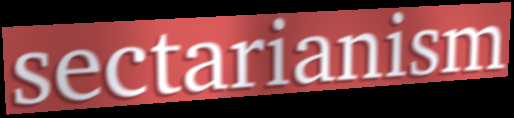
sectarianism